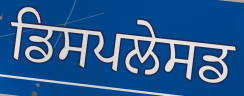
ਡਿਸਪਲੇਸਡ